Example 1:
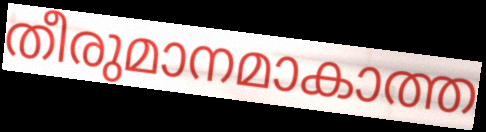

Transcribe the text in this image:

തീരുമാനമാകാത്ത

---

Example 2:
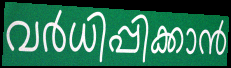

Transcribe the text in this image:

വർധിപ്പിക്കാൻ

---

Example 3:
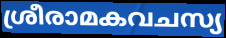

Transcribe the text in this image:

ശ്രീരാമകവചസ്യ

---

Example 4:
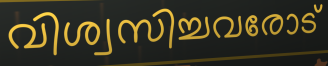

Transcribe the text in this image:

വിശ്വസിച്ചവരോട്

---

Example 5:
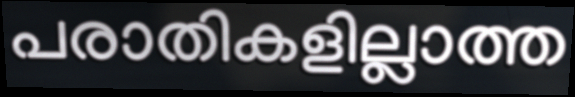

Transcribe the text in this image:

പരാതികളില്ലാത്ത